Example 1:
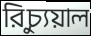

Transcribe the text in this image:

রিচ্যুয়াল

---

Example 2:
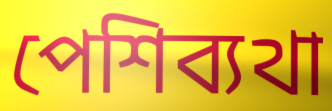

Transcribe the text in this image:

পেশিব্যথা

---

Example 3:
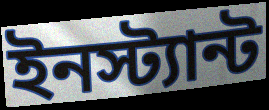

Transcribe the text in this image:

ইনস্ট্যান্ট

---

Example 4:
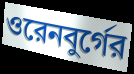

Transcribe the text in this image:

ওরেনবুর্গের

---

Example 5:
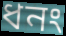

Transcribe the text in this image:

ধনং